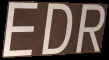
EDR